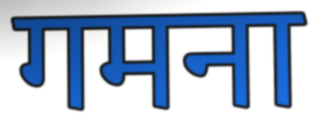
गमना